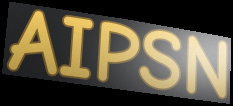
AIPSN